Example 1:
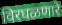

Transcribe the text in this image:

विरघळणारे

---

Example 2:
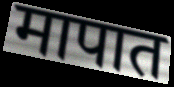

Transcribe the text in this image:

मापात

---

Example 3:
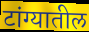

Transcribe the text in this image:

टांग्यातील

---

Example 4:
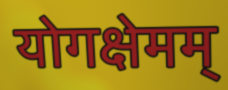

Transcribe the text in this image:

योगक्षेमम्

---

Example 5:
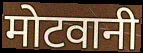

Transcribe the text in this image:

मोटवानी